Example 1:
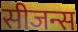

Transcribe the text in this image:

सीजन्स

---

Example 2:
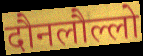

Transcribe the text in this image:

दौनलौल्लो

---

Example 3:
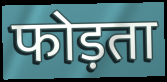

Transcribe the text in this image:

फोड़ता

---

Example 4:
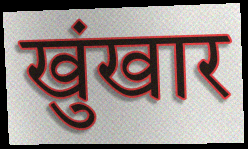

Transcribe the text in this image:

खुंखार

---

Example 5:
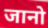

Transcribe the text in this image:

जानो